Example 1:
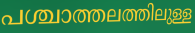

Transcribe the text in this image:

പശ്ചാത്തലത്തിലുള്ള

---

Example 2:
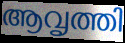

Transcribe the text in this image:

ആവൃത്തി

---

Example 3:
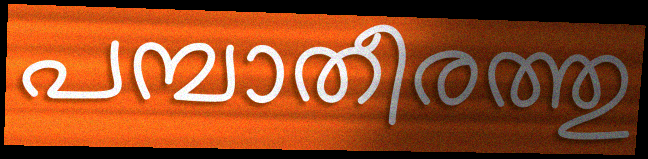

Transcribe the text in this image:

പമ്പാതീരത്തു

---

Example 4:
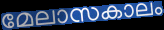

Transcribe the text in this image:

മേലാസകാലം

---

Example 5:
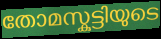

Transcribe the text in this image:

തോമസ്കുട്ടിയുടെ